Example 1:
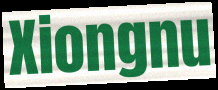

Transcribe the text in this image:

Xiongnu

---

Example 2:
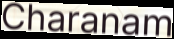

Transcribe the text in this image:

Charanam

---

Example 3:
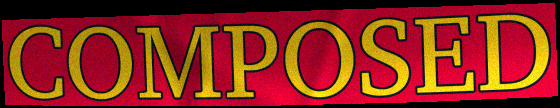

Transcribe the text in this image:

COMPOSED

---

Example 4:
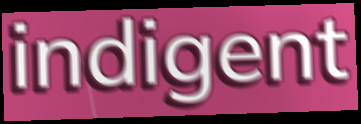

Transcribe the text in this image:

indigent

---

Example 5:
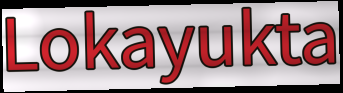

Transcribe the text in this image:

Lokayukta